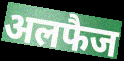
अलफैज